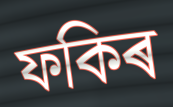
ফকিৰ